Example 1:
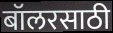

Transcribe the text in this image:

बॉलरसाठी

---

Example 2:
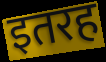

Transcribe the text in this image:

इतरह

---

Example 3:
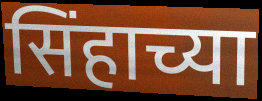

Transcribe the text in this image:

सिंहाच्या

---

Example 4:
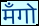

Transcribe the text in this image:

मँगो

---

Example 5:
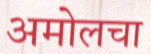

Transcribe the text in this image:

अमोलचा